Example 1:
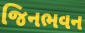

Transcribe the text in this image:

જિનભવન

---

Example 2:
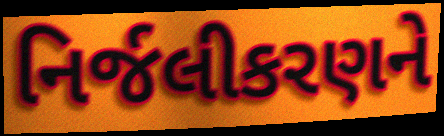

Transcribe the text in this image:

નિર્જલીકરણને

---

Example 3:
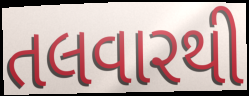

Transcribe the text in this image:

તલવારથી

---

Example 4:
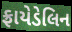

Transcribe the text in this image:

ફ્રાયેડેલિન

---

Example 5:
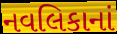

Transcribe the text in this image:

નવલિકાનાં